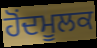
ਹੋਂਦਮੂਲਕ